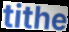
tithe